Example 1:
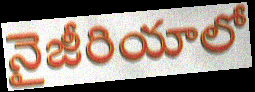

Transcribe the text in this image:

నైజీరియాలో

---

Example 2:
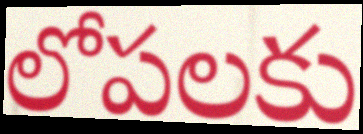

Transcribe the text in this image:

లోపలకు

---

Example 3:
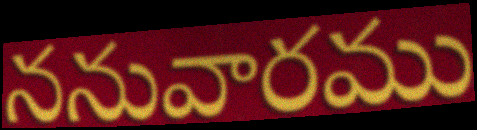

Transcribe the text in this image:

ననువారము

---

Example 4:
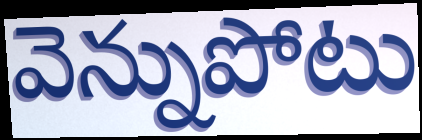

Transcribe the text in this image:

వెన్నుపోటు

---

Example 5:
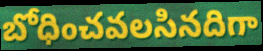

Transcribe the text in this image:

బోధించవలసినదిగా